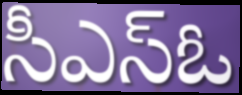
సీఎస్ఓ